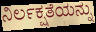
ನಿರ್ಲಕ್ಷತೆಯನ್ನು